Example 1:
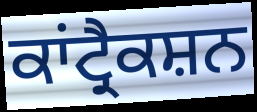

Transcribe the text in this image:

ਕਾਂਟ੍ਰੈਕਸ਼ਨ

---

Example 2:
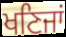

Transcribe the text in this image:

ਖਣਿਜਾਂ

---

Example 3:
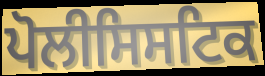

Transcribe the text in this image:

ਪੋਲੀਸਿਸਟਿਕ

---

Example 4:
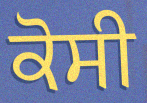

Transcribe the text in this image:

ਕੋਸੀ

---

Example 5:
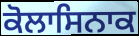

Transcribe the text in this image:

ਕੋਲਾਸਿਨਾਕ